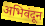
अभिवंदून